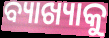
ବ୍ୟାଖ୍ୟାକୁ